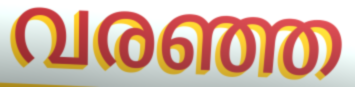
വരഞ്ഞ